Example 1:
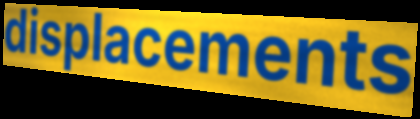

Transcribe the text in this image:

displacements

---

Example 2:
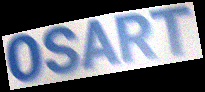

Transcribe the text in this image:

OSART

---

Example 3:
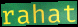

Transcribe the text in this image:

rahat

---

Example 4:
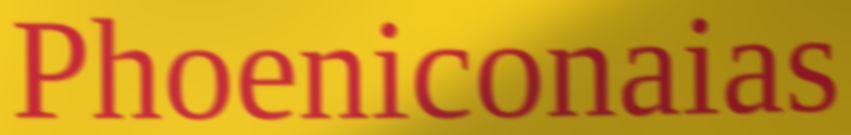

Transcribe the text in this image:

Phoeniconaias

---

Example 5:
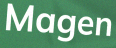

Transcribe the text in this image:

Magen